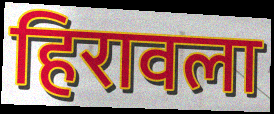
हिरावला